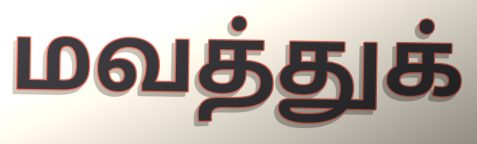
மவத்துக்